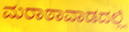
ಮರಾಠಾವಾಡದಲ್ಲಿ